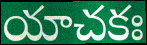
యాచకః